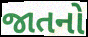
જાતનો